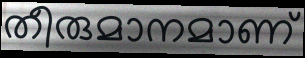
തീരുമാനമാണ്